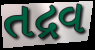
તદ્રવ